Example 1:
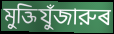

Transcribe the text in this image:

মুক্তিযুঁজাৰুৰ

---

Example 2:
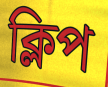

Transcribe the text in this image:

ক্লিপ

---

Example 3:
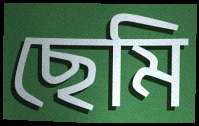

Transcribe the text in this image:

ছেমি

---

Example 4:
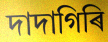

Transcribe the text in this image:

দাদাগিৰি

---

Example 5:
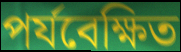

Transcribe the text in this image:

পৰ্যবেক্ষিত